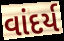
વાંદર્ય